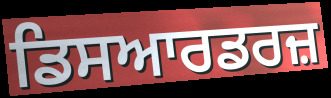
ਡਿਸਆਰਡਰਜ਼